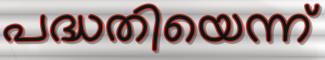
പദ്ധതിയെന്ന്